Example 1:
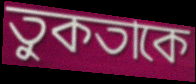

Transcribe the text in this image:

তুকতাকে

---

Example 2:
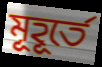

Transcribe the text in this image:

মূহূর্তে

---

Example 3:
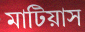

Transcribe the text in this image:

মাটিয়াস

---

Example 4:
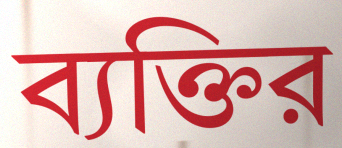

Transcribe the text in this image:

ব্যক্তির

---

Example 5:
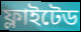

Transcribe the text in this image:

ফ্লাইটেড